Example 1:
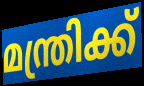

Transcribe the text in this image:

മന്ത്രിക്ക്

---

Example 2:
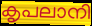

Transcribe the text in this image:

കൃപലാനി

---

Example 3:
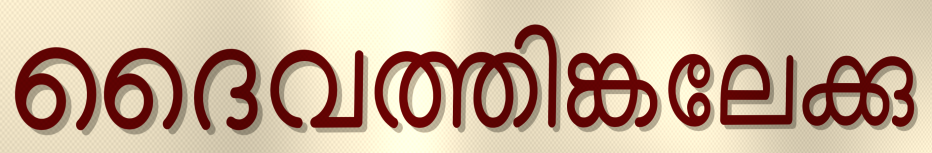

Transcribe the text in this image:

ദൈവത്തിങ്കലേക്കു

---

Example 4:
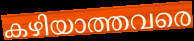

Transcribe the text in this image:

കഴിയാത്തവരെ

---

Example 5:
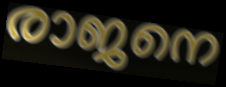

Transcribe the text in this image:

രാജനെ